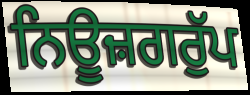
ਨਿਊਜ਼ਗਰੁੱਪ